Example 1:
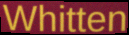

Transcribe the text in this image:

Whitten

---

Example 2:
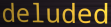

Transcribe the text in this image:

deluded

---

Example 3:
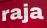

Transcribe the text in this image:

raja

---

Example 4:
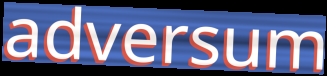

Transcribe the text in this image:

adversum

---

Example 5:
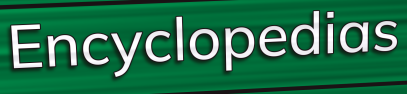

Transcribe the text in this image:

Encyclopedias